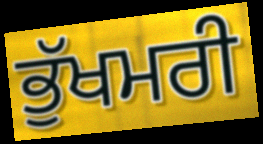
ਭੁੱਖਮਰੀ